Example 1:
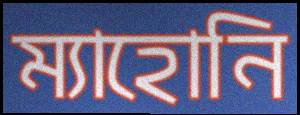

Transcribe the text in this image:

ম্যাহোনি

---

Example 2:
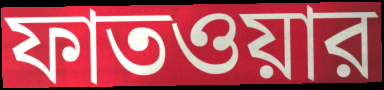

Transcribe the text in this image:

ফাতওয়ার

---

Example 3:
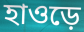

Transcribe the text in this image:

হাওড়ে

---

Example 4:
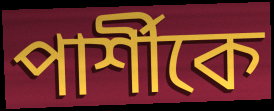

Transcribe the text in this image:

পার্শীকে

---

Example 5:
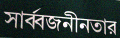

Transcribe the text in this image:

সার্ব্বজনীনতার